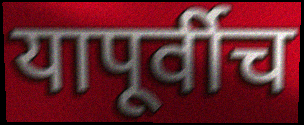
यापूर्वीच